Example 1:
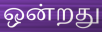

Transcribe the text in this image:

ஒன்றது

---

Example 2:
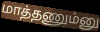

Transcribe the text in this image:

மாத்தணும்னு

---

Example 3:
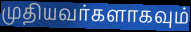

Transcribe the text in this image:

முதியவர்களாகவும்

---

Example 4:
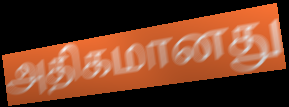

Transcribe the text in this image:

அதிகமானது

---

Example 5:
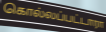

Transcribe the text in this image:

கொல்லப்பட்டாரா